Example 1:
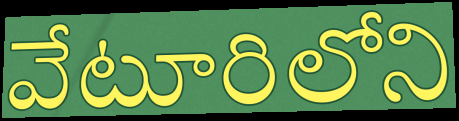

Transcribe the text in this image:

వేటూరిలోని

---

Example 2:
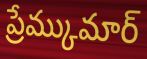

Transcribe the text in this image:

ప్రేమ్కుమార్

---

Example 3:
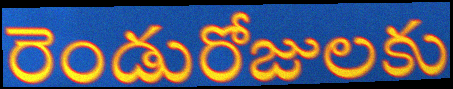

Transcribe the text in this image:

రెండురోజులకు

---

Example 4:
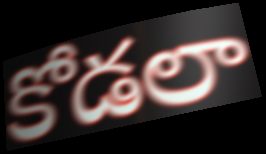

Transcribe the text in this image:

కోడలా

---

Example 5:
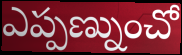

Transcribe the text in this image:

ఎప్పణ్నుంచో